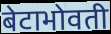
बेटाभोवती